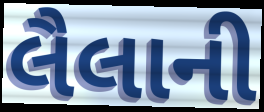
લૈલાની